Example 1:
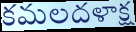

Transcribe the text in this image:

కమలదళాక్ష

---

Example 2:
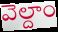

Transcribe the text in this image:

వెల్దాం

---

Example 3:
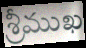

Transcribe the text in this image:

శ్రీముఖ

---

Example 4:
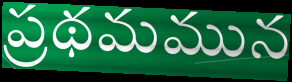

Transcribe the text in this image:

ప్రథమమున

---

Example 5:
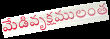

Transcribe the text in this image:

మేడివృక్షములంత